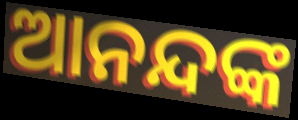
ଆନନ୍ଦଙ୍କ